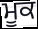
ਮੂਕ